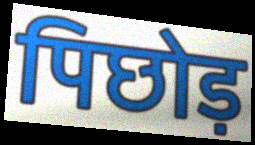
पिछोड़